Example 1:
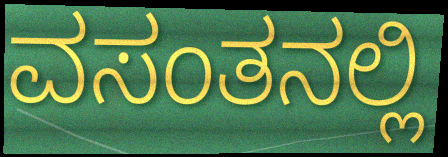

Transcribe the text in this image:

ವಸಂತನಲ್ಲಿ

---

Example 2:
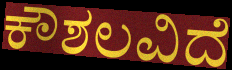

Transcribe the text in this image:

ಕೌಶಲವಿದೆ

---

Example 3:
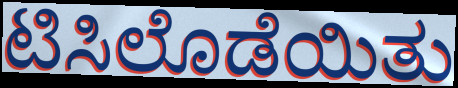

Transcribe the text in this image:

ಟಿಸಿಲೊಡೆಯಿತು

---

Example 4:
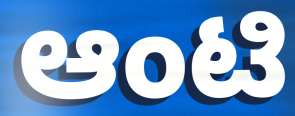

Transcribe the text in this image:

ಆಂಟಿ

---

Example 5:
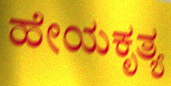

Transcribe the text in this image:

ಹೇಯಕೃತ್ಯ